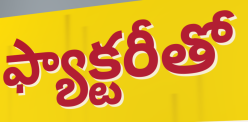
ఫ్యాక్టరీతో